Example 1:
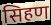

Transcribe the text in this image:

सिहण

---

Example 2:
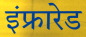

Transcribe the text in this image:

इंफ्रारेड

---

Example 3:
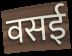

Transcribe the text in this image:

वसई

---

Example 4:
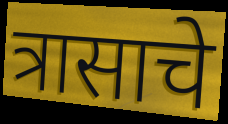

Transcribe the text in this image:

त्रासाचे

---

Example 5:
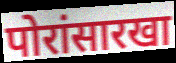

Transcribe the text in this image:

पोरांसारखा